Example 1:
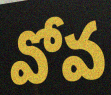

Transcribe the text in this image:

వోవ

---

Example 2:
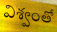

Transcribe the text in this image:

విశ్వంతో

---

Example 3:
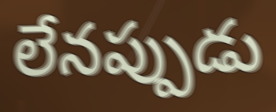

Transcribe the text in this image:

లేనప్పుడు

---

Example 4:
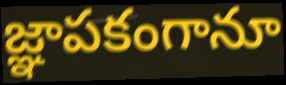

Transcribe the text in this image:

జ్ఞాపకంగానూ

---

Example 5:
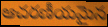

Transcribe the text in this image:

ఆచరణీయమైన